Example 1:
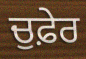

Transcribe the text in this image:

ਚੁਫ਼ੇਰ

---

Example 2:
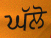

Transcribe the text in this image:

ਘੱਲੋ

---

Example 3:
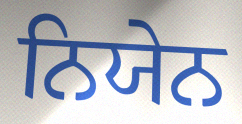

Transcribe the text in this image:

ਨਿਯੇਨ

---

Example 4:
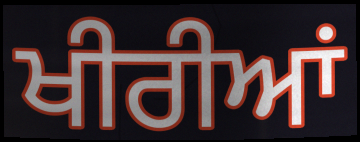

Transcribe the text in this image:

ਖੀਰੀਆਂ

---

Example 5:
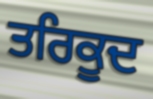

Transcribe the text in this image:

ਤਰਿਕੂਦ